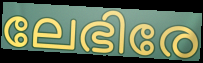
ലേഭിരേ